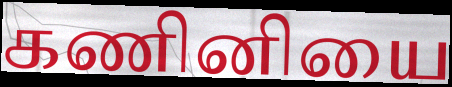
கணினியை